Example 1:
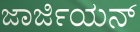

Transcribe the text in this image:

ಜಾರ್ಜಿಯನ್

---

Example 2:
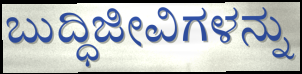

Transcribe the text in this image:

ಬುದ್ಧಿಜೀವಿಗಳನ್ನು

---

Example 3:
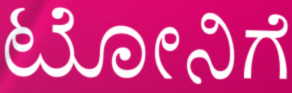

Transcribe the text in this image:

ಟೋನಿಗೆ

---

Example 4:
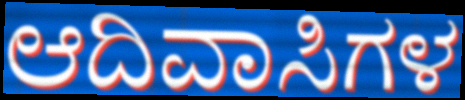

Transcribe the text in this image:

ಆದಿವಾಸಿಗಳ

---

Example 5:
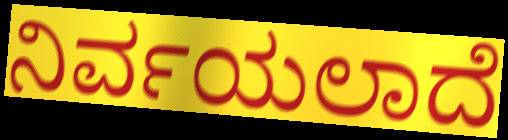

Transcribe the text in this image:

ನಿರ್ವಯಲಾದೆ